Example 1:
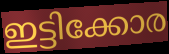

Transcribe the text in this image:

ഇട്ടിക്കോര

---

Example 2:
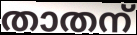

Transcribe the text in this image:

താതന്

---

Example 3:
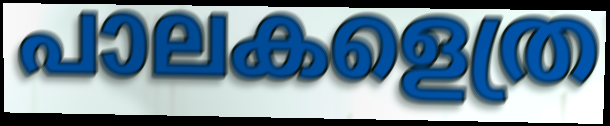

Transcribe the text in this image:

പാലകളെത്ര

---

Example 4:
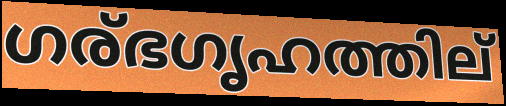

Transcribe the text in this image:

ഗര്ഭഗൃഹത്തില്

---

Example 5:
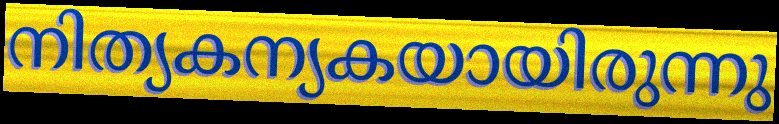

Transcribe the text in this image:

നിത്യകന്യകയായിരുന്നു